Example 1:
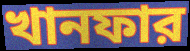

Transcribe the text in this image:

খানফার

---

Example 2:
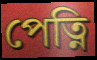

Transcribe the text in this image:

পেত্নি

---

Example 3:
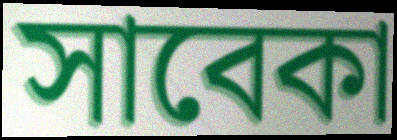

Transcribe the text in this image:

সাবেকা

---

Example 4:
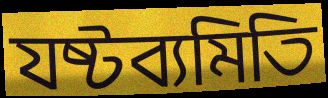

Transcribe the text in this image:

যষ্টব্যমিতি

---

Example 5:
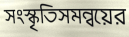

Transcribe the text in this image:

সংস্কৃতিসমন্বয়ের